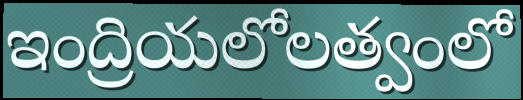
ఇంద్రియలోలత్వంలో